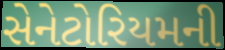
સેનેટોરિયમની